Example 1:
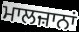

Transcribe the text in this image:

ਮਾਲਜ਼ਾਨਾਂ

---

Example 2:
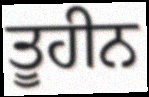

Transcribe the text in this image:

ਤੂਹੀਨ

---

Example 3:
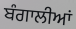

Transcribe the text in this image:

ਬੰਗਾਲੀਆਂ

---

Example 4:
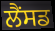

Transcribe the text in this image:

ਲੈਂਸਡ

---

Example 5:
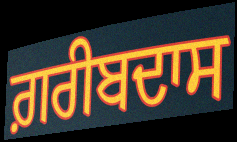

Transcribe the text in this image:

ਗ਼ਰੀਬਦਾਸ